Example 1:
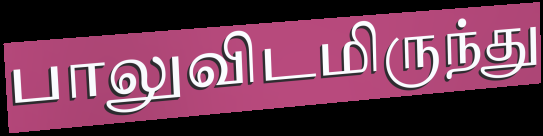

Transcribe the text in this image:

பாலுவிடமிருந்து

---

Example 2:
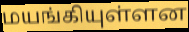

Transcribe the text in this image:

மயங்கியுள்ளன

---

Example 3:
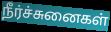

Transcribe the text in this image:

நீர்ச்சுனைகள்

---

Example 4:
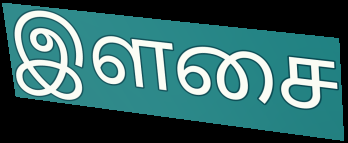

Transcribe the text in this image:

இளசை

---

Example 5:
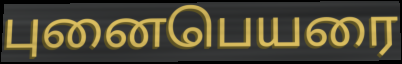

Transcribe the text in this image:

புனைபெயரை